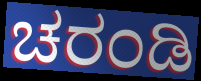
ಚರಂಡಿ